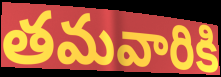
తమవారికి